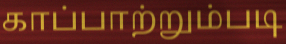
காப்பாற்றும்படி